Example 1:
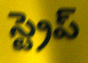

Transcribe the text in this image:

స్ట్రెప్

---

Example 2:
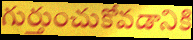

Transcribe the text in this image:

గుర్తుంచుకోవడానికి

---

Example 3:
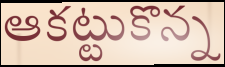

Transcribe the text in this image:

ఆకట్టుకొన్న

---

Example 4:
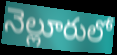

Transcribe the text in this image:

నెల్లూరులో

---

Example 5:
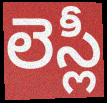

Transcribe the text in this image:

లెస్లీ